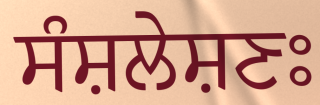
ਸੰਸ਼ਲੇਸ਼ਣਃ